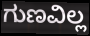
ಗುಣವಿಲ್ಲ